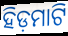
ହିଡ଼ମାଟି